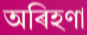
অৰিহণা